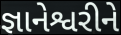
જ્ઞાનેશ્વરીને